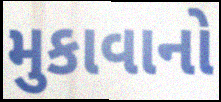
મુકાવાનો